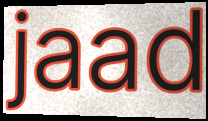
jaad